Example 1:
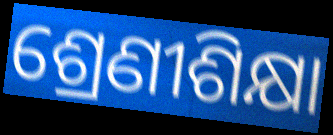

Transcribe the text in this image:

ଶ୍ରେଣୀଶିକ୍ଷା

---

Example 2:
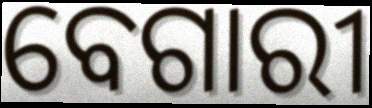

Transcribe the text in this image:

ବେଗାରୀ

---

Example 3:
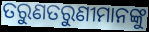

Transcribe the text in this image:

ତରୁଣତରୁଣୀମାନଙ୍କୁ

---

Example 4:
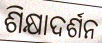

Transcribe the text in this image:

ଶିକ୍ଷାଦର୍ଶନ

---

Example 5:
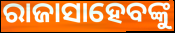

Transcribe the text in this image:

ରାଜାସାହେବଙ୍କୁ